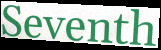
Seventh